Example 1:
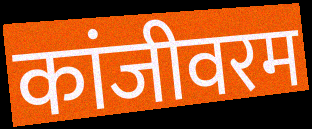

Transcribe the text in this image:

कांजीवरम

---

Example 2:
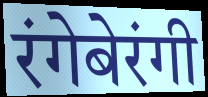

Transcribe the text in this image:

रंगेबेरंगी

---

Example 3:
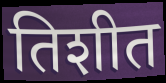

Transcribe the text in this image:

तिशीत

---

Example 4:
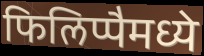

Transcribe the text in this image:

फिलिप्पैमध्ये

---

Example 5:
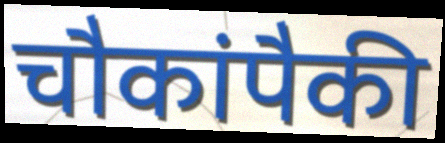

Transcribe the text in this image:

चौकांपैकी